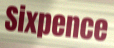
Sixpence